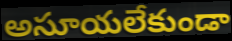
అసూయలేకుండా